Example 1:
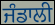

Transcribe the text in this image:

ਜੰਡਾਲੀ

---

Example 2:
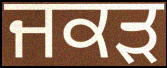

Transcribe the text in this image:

ਜਕੜ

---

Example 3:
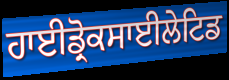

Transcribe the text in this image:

ਹਾਈਡ੍ਰੋਕਸਾਈਲੇਟਿਡ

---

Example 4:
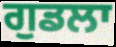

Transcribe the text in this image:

ਗੁਡਲਾ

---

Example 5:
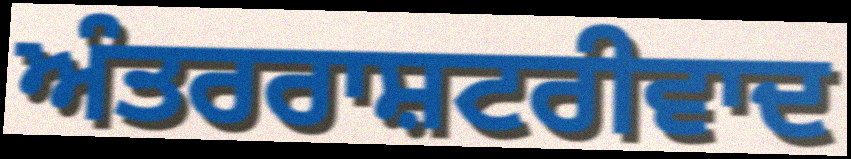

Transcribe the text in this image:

ਅੰਤਰਰਾਸ਼ਟਰੀਵਾਦ